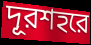
দূরশহরে